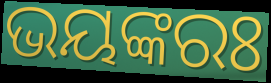
ଭୟଙ୍କରଃ